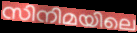
സിനിമയിലെ